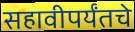
सहावीपर्यंतचे